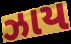
ઝાય